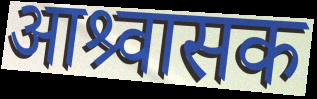
आश्र्वासक